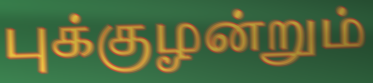
புக்குழன்றும்